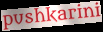
pushkarini